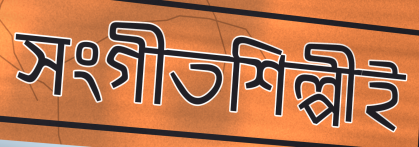
সংগীতশিল্পীই